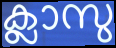
ക്ലാസു